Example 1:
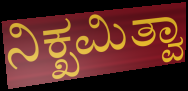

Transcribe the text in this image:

ನಿಕ್ಖಮಿತ್ವಾ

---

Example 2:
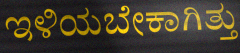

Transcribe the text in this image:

ಇಳಿಯಬೇಕಾಗಿತ್ತು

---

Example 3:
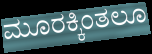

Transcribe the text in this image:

ಮೂರಕ್ಕಿಂತಲೂ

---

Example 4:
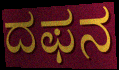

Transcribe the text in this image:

ದಫನ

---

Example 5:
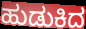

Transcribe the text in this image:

ಹುಡುಕಿದ